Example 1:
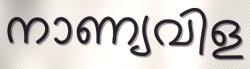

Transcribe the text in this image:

നാണ്യവിള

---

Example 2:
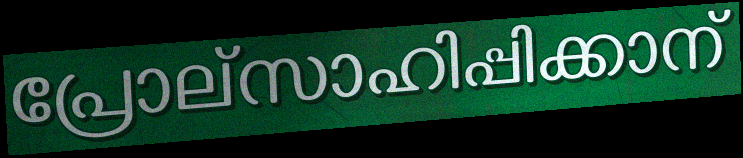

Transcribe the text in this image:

പ്രോല്സാഹിപ്പിക്കാന്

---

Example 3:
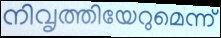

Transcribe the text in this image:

നിവൃത്തിയേറുമെന്ന്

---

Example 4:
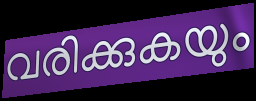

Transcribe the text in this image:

വരിക്കുകയും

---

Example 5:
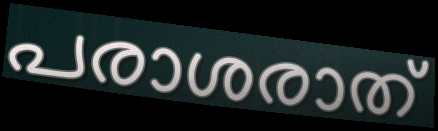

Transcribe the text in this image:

പരാശരാത്